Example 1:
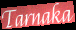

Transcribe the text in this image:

Tarnaka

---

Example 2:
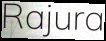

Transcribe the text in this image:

Rajura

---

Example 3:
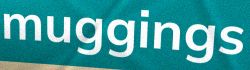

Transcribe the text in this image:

muggings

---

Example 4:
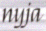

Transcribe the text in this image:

nyja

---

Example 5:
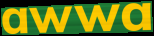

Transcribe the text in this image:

awwa